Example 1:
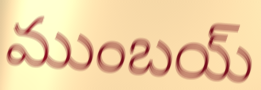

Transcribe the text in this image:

ముంబయ్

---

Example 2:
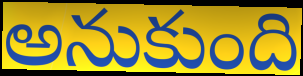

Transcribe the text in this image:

అనుకుంది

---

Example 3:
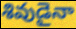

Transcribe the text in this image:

శివుడైనా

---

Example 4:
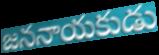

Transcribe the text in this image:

జననాయకుడు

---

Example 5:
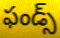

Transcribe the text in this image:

ఫండ్స్